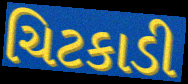
ચિટકાડી